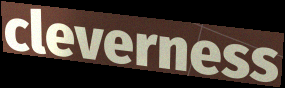
cleverness